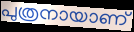
പുത്രനായാണ്